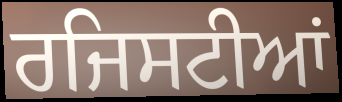
ਰਜਿਸਟੀਆਂ